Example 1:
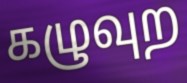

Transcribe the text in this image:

கழுவுற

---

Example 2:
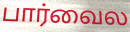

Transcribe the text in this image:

பார்வைல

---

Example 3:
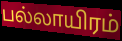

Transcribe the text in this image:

பல்லாயிரம்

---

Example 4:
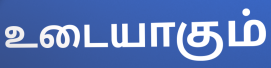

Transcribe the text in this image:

உடையாகும்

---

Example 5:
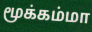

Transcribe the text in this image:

மூக்கம்மா